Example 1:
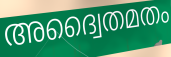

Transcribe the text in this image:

അദ്വൈതമതം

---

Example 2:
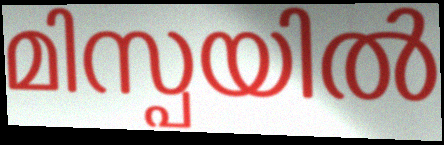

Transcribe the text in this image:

മിസ്പയിൽ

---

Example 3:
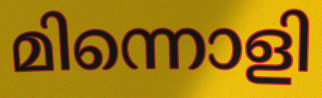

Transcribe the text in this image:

മിന്നൊളി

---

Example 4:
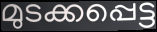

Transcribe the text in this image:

മുടക്കപ്പെട്ട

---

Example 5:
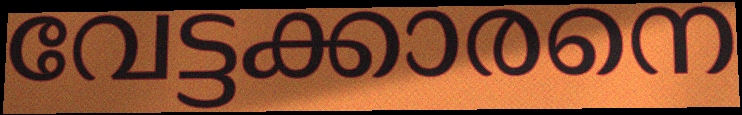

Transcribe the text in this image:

വേട്ടക്കാരനെ